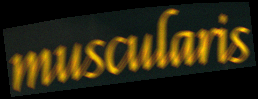
muscularis